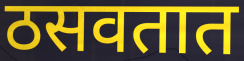
ठसवतात